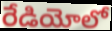
రేడియోలో